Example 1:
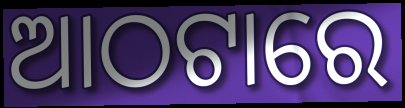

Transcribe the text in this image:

ଆଠଟାରେ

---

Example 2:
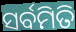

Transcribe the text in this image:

ସର୍ବମିତି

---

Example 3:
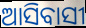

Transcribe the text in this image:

ଆସିବାସୀ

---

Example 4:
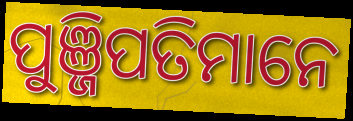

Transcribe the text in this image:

ପୁଞ୍ଜିପତିମାନେ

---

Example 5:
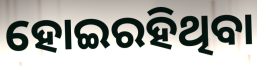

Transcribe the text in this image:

ହୋଇରହିଥିବା